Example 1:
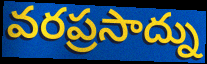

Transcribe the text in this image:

వరప్రసాద్ను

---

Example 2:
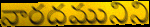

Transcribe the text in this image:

నారదమునిని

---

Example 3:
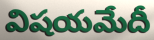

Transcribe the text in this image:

విషయమేదీ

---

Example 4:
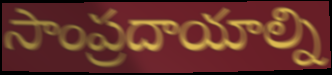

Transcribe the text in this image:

సాంప్రదాయాల్ని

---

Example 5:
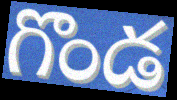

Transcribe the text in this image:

గొండ